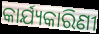
କାର୍ଯ୍ୟକାରିଣୀ